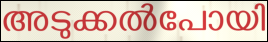
അടുക്കൽപോയി